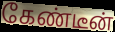
கேண்டீன்